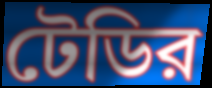
টেডির